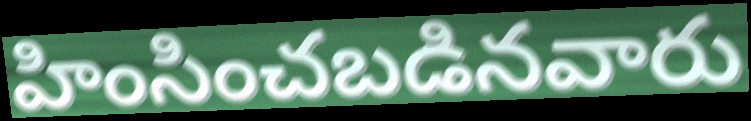
హింసించబడినవారు